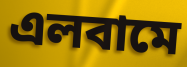
এলবামে